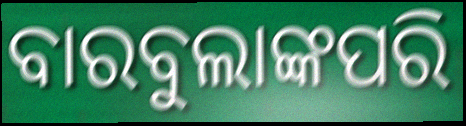
ବାରବୁଲାଙ୍କପରି